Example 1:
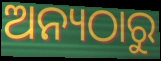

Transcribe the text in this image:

ଅନ୍ୟଠାରୁ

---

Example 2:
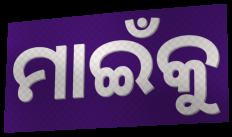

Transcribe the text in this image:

ମାଇଁକୁ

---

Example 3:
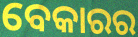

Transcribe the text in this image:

ବେକାରର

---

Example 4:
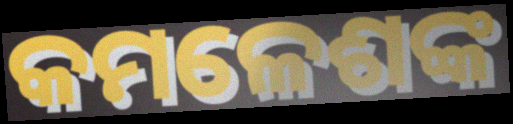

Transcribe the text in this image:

କମଳେଶଙ୍କ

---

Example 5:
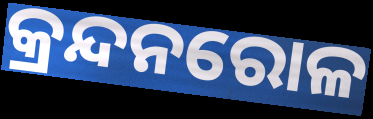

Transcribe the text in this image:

କ୍ରନ୍ଦନରୋଳ